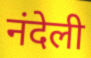
नंदेली